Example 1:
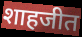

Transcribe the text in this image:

शाहजीत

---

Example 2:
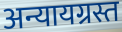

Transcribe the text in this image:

अन्यायग्रस्त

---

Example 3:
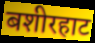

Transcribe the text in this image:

बशीरहाट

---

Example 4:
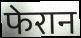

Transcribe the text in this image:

फेरान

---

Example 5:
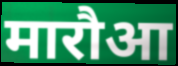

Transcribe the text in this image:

मारौआ